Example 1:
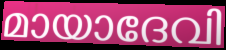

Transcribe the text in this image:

മായാദേവി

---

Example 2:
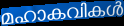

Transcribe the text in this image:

മഹാകവികൾ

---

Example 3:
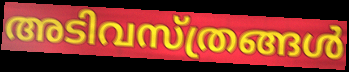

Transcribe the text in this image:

അടിവസ്ത്രങ്ങൾ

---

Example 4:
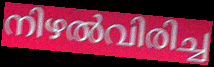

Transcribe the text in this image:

നിഴൽവിരിച്ച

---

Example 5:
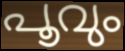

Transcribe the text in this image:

പൂവും